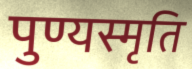
पुण्यस्मृति